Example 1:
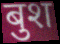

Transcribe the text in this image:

बुश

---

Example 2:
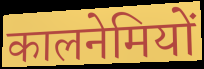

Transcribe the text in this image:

कालनेमियों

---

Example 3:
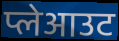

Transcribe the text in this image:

प्लेआउट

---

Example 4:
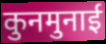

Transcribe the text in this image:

कुनमुनाई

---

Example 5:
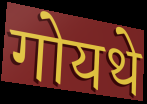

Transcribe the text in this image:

गोयथे